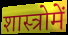
शास्त्रोमें